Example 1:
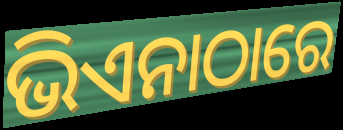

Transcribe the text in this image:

ଭିଏନାଠାରେ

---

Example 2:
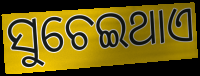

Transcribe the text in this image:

ସୁଚେଇଥାଏ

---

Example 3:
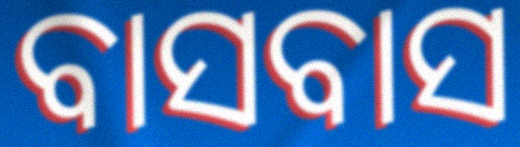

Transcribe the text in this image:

ବାସବାସ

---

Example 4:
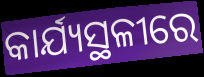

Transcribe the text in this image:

କାର୍ଯ୍ୟସ୍ଥଳୀରେ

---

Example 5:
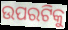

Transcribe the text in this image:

ଉପରଟିକୁ